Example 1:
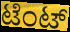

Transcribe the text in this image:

ಟೆಂಟ್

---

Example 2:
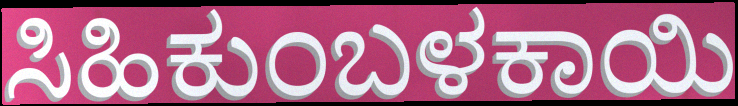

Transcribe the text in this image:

ಸಿಹಿಕುಂಬಳಕಾಯಿ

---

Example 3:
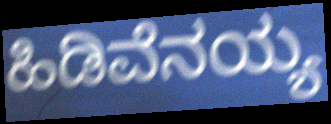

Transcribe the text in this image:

ಹಿಡಿವೆನಯ್ಯ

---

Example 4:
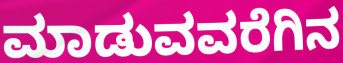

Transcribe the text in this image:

ಮಾಡುವವರೆಗಿನ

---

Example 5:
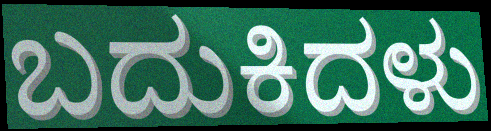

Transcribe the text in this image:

ಬದುಕಿದಳು